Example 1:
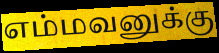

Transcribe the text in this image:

எம்மவனுக்கு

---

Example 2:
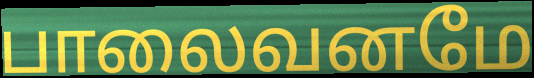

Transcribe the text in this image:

பாலைவனமே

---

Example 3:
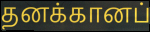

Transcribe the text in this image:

தனக்கானப்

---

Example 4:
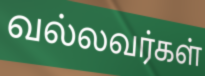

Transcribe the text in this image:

வல்லவர்கள்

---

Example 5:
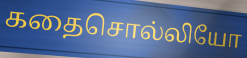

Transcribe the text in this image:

கதைசொல்லியோ